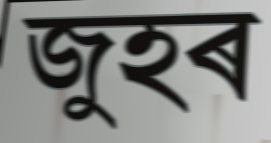
জুহৰ